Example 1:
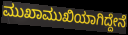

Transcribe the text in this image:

ಮುಖಾಮುಖಿಯಾಗಿದ್ದೇನೆ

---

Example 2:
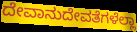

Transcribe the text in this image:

ದೇವಾನುದೇವತೆಗಳೆಲ್ಲಾ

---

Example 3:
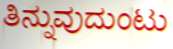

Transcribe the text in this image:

ತಿನ್ನುವುದುಂಟು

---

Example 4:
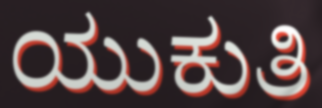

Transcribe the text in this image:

ಯುಕುತಿ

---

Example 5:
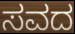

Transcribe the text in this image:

ಸವದ